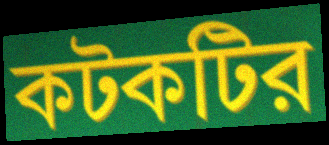
কটকটির